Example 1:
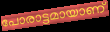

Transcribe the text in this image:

പോരാട്ടമായാണ്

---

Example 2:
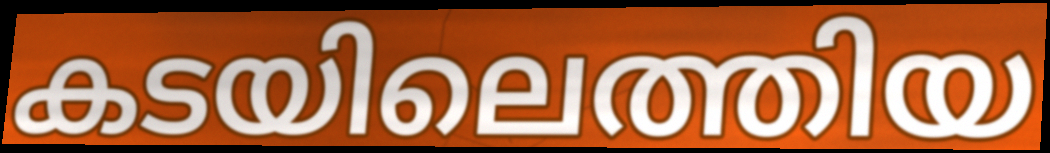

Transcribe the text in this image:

കടയിലെത്തിയ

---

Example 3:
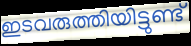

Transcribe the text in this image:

ഇടവരുത്തിയിട്ടുണ്ട്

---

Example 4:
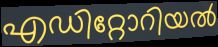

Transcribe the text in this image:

എഡിറ്റോറിയൽ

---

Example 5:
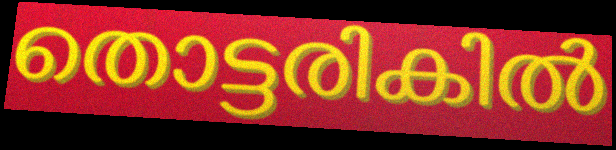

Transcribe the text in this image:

തൊട്ടരികിൽ